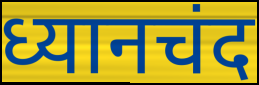
ध्यानचंद